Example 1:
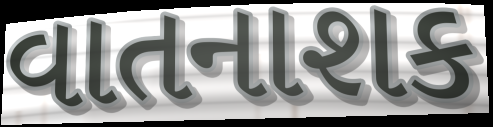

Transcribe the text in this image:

વાતનાશક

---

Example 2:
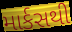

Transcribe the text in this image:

માર્કસથી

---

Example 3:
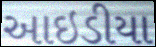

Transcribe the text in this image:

આઇડીયા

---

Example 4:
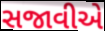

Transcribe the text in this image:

સજાવીએ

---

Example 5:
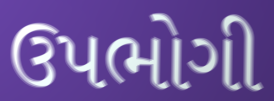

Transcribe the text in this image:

ઉપભોગી